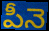
పీనె